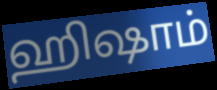
ஹிஷாம்